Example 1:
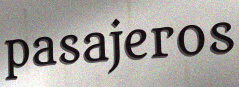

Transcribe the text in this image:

pasajeros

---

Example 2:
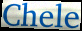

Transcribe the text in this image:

Chele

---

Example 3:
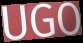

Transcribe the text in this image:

UGO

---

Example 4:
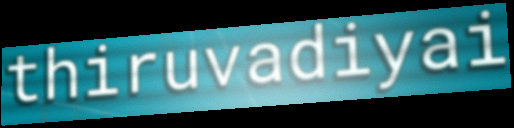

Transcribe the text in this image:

thiruvadiyai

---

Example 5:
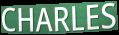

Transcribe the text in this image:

CHARLES